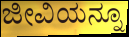
ಜೀವಿಯನ್ನೂ